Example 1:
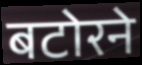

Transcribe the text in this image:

बटोरने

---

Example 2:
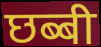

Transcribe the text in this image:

छब्बी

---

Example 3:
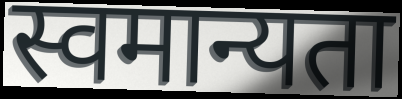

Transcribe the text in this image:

स्वमान्यता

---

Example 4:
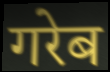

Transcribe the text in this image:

गरेब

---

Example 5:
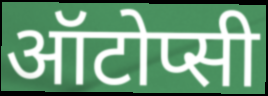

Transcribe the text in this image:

ऑटोप्सी